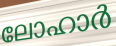
ലോഹാർ